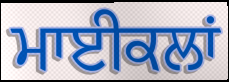
ਮਾਈਕਲਾਂ